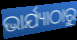
ଭାର୍ଯ୍ୟାଠାରୁ